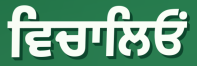
ਵਿਚਾਲਿਓਂ